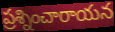
ప్రశ్నించారాయన